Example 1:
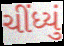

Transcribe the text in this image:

ચીંધ્યું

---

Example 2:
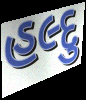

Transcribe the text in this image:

હલ્દુ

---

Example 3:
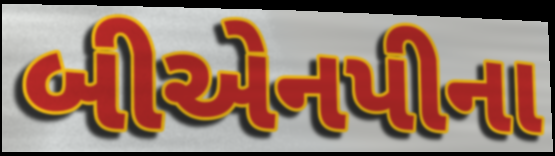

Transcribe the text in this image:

બીએનપીના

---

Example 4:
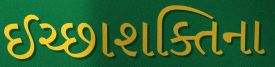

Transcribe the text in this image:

ઈચ્છાશક્તિના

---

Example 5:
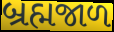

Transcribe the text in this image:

બ્રહ્મજાળ